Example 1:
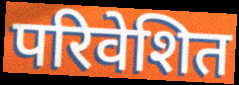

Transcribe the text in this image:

परिवेशित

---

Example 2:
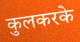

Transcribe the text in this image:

कुलकरके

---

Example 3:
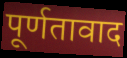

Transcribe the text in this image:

पूर्णतावाद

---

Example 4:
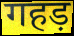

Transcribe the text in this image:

गहड़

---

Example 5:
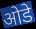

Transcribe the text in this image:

ओडे